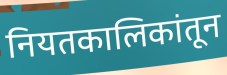
नियतकालिकांतून